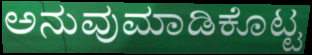
ಅನುವುಮಾಡಿಕೊಟ್ಟ